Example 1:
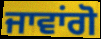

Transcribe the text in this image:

ਜਾਵਾਂਗੋ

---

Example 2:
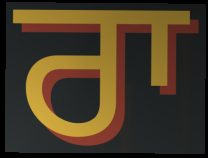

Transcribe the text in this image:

ਰਾ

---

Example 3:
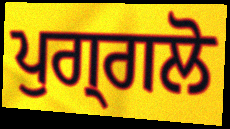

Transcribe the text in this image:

ਪੁਗ੍ਗਲੋ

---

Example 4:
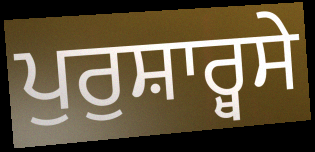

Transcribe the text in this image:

ਪੁਰੁਸ਼ਾਰ੍ਥਸੇ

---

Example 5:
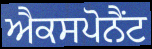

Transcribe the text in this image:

ਐਕਸਪੋਨੈਂਟ